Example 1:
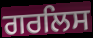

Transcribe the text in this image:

ਗਰਲਿਸ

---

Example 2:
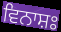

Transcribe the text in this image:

ਵਿਨਾਸ਼ਃ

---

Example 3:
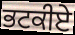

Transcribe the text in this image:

ਭਟਕੀਏ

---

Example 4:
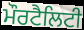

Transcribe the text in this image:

ਮੌਰਟੈਲਿਟੀ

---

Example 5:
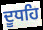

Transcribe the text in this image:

ਦੂਧਹਿ